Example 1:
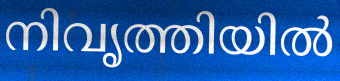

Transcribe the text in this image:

നിവൃത്തിയിൽ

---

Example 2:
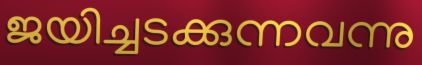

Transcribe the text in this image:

ജയിച്ചടക്കുന്നവന്നു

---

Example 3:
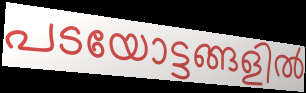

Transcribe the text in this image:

പടയോട്ടങ്ങളിൽ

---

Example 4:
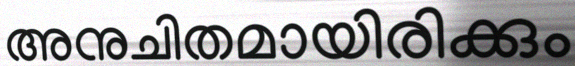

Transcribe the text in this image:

അനുചിതമായിരിക്കും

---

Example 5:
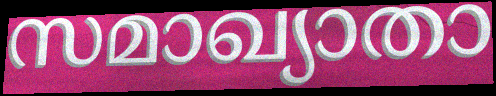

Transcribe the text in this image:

സമാഖ്യാതാ